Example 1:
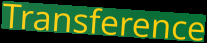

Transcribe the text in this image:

Transference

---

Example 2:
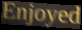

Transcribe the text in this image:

Enjoyed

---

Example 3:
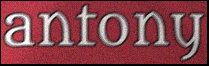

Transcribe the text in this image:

antony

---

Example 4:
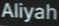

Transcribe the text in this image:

Aliyah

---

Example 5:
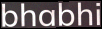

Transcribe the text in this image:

bhabhi